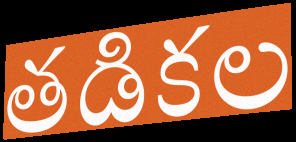
తడికల